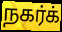
நகர்க்